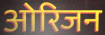
ओरिजन